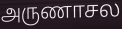
அருணாசல